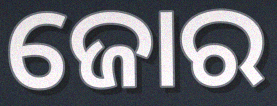
ଜୋର